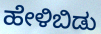
ಹೇಳಿಬಿಡು